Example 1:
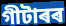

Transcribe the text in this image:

গীটাৰৰ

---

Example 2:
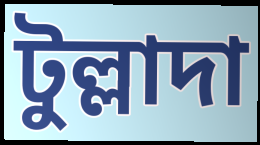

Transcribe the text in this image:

টুল্লাদা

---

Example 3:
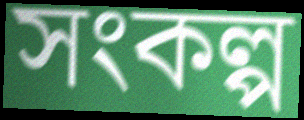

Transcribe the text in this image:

সংকল্প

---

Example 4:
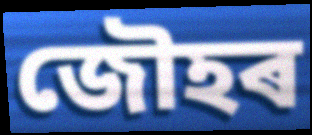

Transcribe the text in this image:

জৌহৰ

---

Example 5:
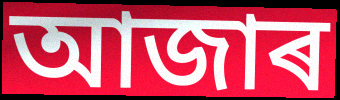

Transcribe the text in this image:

আজাৰ